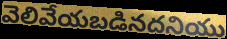
వెలివేయబడినదనియు